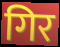
गिर